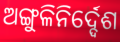
ଅଙ୍ଗୁଳିନିର୍ଦ୍ଦେଶ